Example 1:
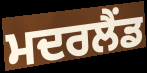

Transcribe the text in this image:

ਮਦਰਲੈਂਡ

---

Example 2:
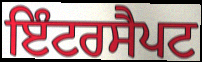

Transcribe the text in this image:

ਇੰਟਰਸੈਪਟ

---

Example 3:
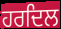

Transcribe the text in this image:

ਹਰਦਿਲ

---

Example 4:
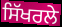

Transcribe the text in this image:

ਸਿੱਖਰਲੇ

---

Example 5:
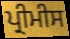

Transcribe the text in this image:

ਪ੍ਰੀਮੀਸ